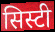
सिस्टी